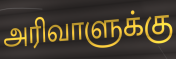
அரிவாளுக்கு